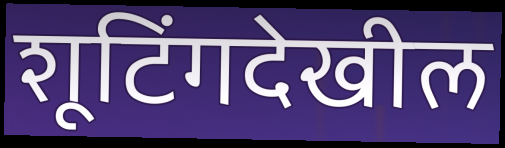
शूटिंगदेखील